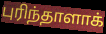
புரிந்தாளாக்